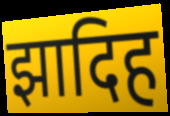
झादिह